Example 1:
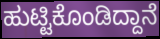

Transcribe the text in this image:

ಹುಟ್ಟಿಕೊಂಡಿದ್ದಾನೆ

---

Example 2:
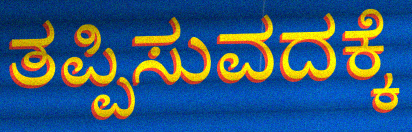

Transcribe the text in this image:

ತಪ್ಪಿಸುವದಕ್ಕೆ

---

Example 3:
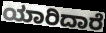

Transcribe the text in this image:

ಯಾರಿದಾರೆ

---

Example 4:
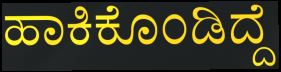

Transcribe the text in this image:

ಹಾಕಿಕೊಂಡಿದ್ದೆ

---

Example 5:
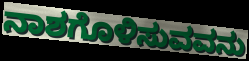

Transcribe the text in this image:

ನಾಶಗೊಳಿಸುವವನು